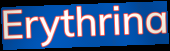
Erythrina